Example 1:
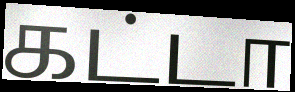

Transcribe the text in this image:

கட்டா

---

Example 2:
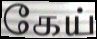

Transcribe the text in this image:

கேய்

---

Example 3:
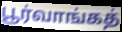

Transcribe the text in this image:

பூர்வாங்கத்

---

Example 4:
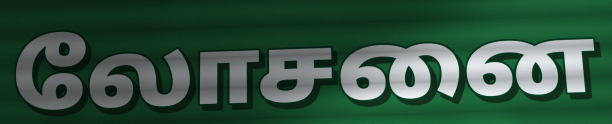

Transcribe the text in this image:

லோசனை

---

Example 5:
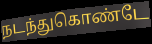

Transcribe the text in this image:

நடந்துகொண்டே